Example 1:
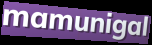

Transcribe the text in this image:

mamunigal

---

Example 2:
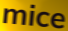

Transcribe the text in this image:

mice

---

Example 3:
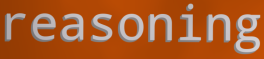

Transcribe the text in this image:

reasoning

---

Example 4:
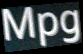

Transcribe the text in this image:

Mpg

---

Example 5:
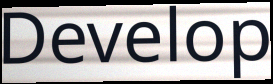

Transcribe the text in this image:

Develop